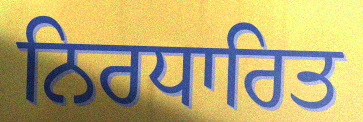
ਨਿਰਧਾਰਿਤ